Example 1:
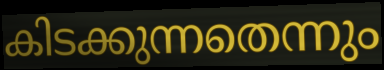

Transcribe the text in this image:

കിടക്കുന്നതെന്നും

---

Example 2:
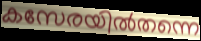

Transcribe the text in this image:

കസേരയിൽതന്നെ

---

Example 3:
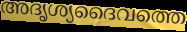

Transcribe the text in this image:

അദൃശ്യദൈവത്തെ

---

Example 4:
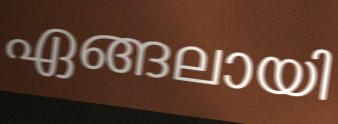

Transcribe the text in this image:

ഏങ്ങലായി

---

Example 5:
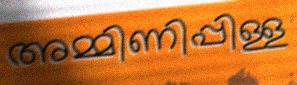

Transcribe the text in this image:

അമ്മിണിപ്പിള്ള